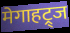
मेगाहट्र्ज